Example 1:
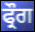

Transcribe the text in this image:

ਫ੍ਰੌਗ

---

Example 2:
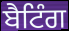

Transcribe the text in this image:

ਬੈਟਿੰਗ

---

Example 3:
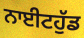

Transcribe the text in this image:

ਨਾਈਟਹੁੱਡ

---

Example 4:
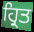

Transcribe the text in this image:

ਹ੍ਰਿਤ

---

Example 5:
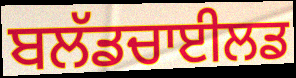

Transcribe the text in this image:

ਬਲੱਡਚਾਈਲਡ